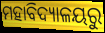
ମହାବିଦ୍ୟାଳୟରୁ